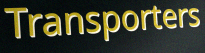
Transporters